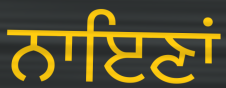
ਨਾਇਣਾਂ